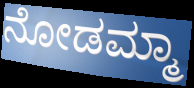
ನೋಡಮ್ಮಾ